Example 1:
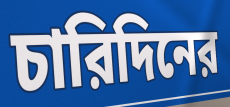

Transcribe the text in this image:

চারিদিনের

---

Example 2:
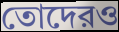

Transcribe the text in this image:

তোদেরও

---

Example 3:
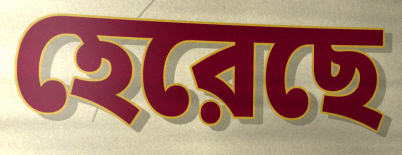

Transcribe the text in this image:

হেরেছে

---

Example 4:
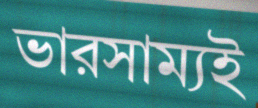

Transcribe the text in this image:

ভারসাম্যই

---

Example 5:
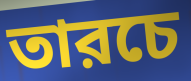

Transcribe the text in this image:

তারচে